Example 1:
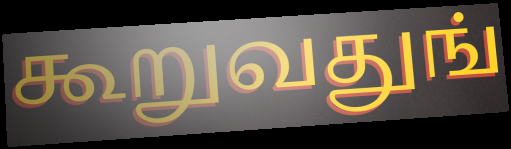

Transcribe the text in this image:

கூறுவதுங்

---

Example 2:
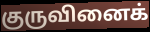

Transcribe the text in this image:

குருவினைக்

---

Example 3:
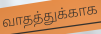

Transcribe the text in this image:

வாதத்துக்காக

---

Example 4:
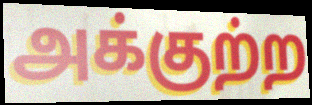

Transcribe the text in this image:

அக்குற்ற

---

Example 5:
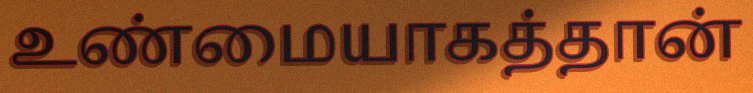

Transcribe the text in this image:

உண்மையாகத்தான்